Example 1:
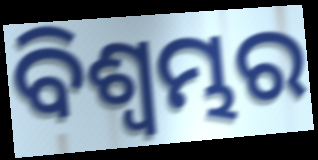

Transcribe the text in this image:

ବିଶ୍ବମ୍ଭର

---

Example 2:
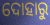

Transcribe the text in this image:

ଦୋହାରୁ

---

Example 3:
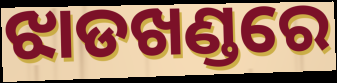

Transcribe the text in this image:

ଝାଡଖଣ୍ଡରେ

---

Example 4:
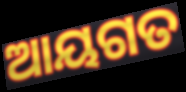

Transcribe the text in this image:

ଆୟଗତ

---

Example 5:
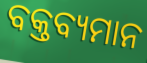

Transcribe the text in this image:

ବକ୍ତବ୍ୟମାନ